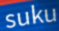
suku